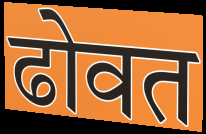
ढोवत